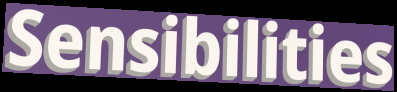
Sensibilities